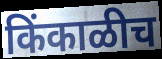
किंकाळीच